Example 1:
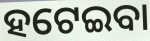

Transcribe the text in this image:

ହଟେଇବା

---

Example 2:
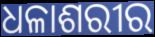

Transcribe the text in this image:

ଧଳାଶରୀର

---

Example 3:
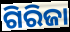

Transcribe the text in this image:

ଗିରିଜା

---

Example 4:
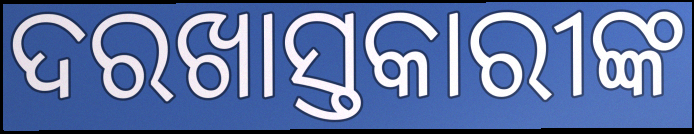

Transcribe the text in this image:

ଦରଖାସ୍ତକାରୀଙ୍କ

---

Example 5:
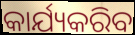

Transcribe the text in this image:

କାର୍ଯ୍ୟକରିବ